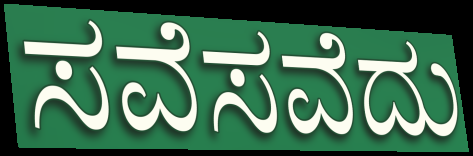
ಸವೆಸವೆದು